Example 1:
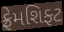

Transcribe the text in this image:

ફ્રેમશિફ્ટ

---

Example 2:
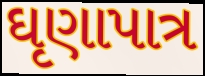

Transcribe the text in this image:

ઘૃણાપાત્ર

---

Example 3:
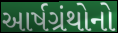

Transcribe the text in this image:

આર્ષગ્રંથોનો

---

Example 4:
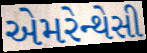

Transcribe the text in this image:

એમરેન્થેસી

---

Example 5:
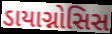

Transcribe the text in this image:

ડાયાગ્નોસિસ